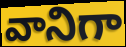
వానిగా